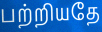
பற்றியதே